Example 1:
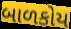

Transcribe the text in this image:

બાળકોય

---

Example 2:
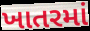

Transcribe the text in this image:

ખાતરમાં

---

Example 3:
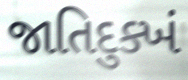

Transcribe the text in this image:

જાતિદુક્ખં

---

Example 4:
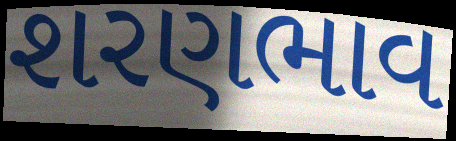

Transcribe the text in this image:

શરણભાવ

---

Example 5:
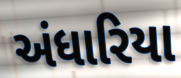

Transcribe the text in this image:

અંધારિયા